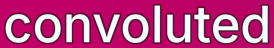
convoluted